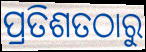
ପ୍ରତିଶତଠାରୁ